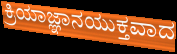
ಕ್ರಿಯಾಜ್ಞಾನಯುಕ್ತವಾದ